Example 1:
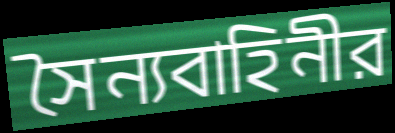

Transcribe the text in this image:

সৈন্যবাহিনীর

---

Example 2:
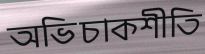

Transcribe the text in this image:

অভিচাকশীতি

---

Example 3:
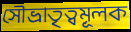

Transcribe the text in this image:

সৌভ্রাতৃত্বমূলক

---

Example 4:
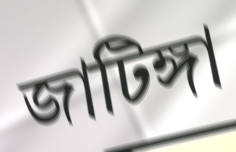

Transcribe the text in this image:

জাটিঙ্গা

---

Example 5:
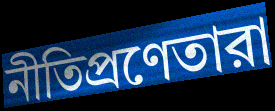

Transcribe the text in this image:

নীতিপ্রণেতারা